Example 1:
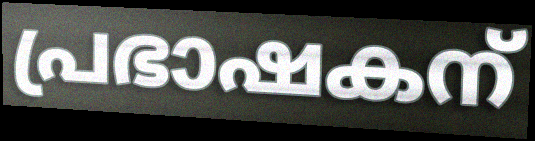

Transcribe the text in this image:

പ്രഭാഷകന്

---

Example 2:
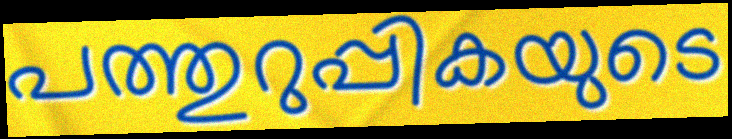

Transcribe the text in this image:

പത്തുറുപ്പികയുടെ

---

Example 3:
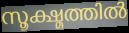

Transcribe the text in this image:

സൂക്ഷ്മത്തിൽ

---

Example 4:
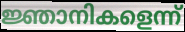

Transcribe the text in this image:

ജ്ഞാനികളെന്ന്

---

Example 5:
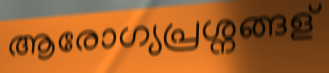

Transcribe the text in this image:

ആരോഗ്യപ്രശ്നങ്ങള്